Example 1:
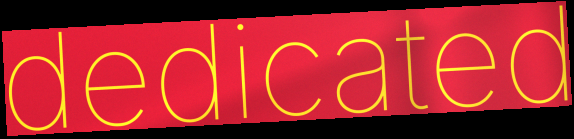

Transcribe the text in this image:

dedicated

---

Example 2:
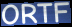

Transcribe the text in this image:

ORTF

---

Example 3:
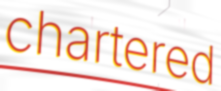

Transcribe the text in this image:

chartered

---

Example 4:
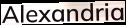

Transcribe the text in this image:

Alexandria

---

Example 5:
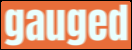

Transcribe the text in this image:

gauged